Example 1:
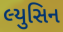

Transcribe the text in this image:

લ્યુસિન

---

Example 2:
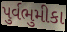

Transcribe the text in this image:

પુર્વભુમીકા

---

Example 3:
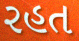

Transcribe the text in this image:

રહત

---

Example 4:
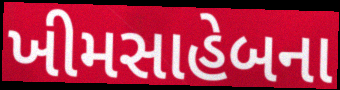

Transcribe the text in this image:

ખીમસાહેબના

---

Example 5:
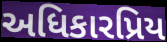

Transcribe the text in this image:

અધિકારપ્રિય